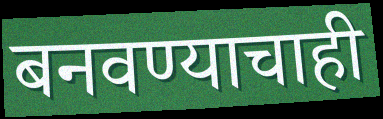
बनवण्याचाही